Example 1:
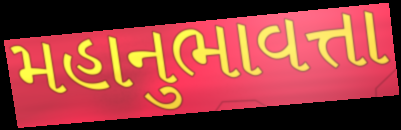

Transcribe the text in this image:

મહાનુભાવત્તા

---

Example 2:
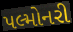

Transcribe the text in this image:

પલ્મોનરી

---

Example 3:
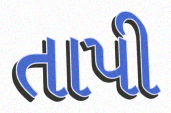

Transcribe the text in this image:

તાપી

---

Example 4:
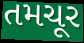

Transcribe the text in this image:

તમચૂર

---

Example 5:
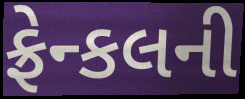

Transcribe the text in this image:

ફ્રેન્કલની